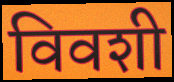
विवशी